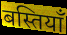
बस्तियाँ